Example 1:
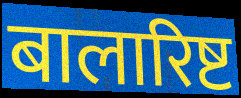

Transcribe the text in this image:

बालारिष्ट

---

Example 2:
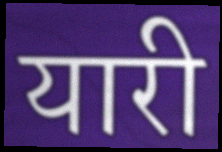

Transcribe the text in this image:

यारी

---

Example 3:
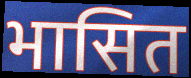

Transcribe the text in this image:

भासित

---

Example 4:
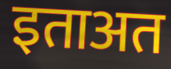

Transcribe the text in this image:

इताअत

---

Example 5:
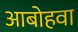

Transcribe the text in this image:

आबोहवा